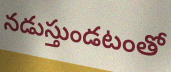
నడుస్తుండటంతో